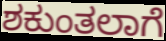
ಶಕುಂತಲಾಗೆ